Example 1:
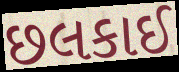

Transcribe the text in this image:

છલકાઈ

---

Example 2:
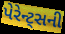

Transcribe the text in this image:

પેરેન્ટ્સની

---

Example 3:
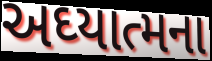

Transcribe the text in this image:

અઘ્યાત્મના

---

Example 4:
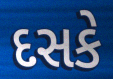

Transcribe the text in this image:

દસકે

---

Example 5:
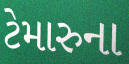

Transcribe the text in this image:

ટેમારુના